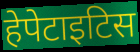
हेपेटाइटिस